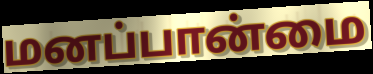
மனப்பான்மை